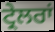
ਟ੍ਰੇਲਰਾਂ